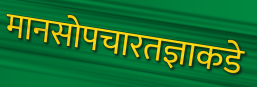
मानसोपचारतज्ञाकडे